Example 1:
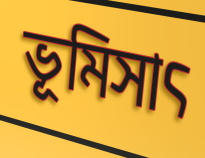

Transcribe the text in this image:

ভূমিসাৎ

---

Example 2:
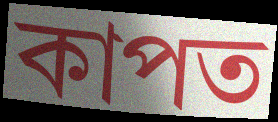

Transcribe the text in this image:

কাপত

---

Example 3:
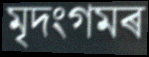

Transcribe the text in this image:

মৃদংগমৰ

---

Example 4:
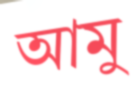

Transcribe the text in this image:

আমু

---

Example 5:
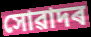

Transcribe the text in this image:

সোৱাদৰ